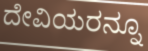
ದೇವಿಯರನ್ನೂ